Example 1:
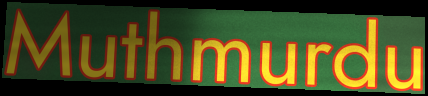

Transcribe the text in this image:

Muthmurdu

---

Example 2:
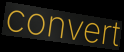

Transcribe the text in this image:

convert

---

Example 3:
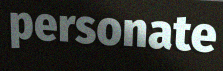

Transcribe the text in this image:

personate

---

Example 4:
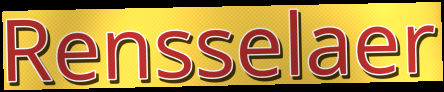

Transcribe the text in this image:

Rensselaer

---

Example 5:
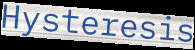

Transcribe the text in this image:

Hysteresis